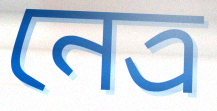
নেত্র